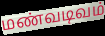
மண்வடிவம்